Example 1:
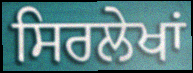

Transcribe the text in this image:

ਸਿਰਲੇਖਾਂ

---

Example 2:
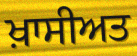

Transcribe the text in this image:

ਖ਼ਾਸੀਅਤ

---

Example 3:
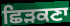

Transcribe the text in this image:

ਛਿੜਕਣਾ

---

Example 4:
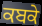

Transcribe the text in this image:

ਕਬਕੇ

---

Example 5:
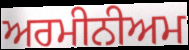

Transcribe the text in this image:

ਅਰਮੀਨੀਅਮ